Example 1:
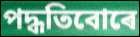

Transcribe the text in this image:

পদ্ধতিবোৰে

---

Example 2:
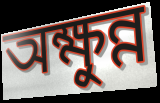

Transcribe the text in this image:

অক্ষুন্ন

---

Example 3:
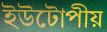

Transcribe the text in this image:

ইউটোপীয়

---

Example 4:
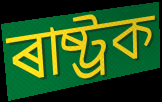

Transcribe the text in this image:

ৰাষ্ট্ৰক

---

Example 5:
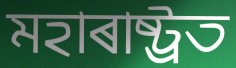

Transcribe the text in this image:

মহাৰাষ্ট্ৰত